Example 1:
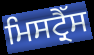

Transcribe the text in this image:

ਮਿਸਟ੍ਰੈੱਸ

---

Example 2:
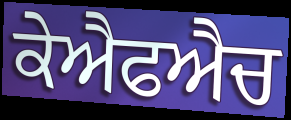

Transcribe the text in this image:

ਕੇਐਫਐਚ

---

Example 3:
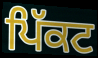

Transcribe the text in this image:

ਪਿੱਕਟ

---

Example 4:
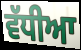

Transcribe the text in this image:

ਵੱਧੀਆ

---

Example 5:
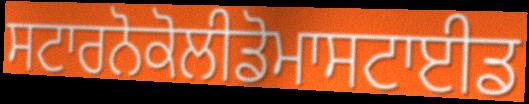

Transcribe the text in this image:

ਸਟਾਰਨੋਕੋਲੀਡੋਮਾਸਟਾਈਡ